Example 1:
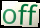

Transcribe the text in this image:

off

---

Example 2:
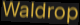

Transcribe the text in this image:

Waldrop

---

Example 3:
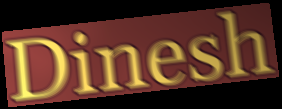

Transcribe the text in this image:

Dinesh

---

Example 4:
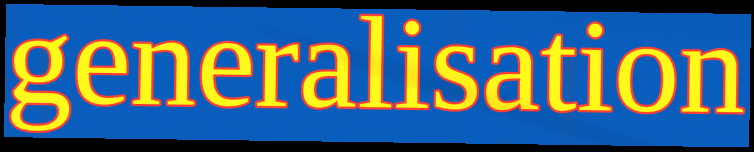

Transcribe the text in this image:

generalisation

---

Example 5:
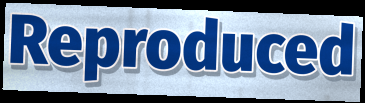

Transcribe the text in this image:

Reproduced